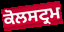
ਕੋਲਸਟ੍ਰਮ